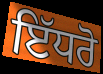
ਇੱਧਰੋ